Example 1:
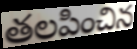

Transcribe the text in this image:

తలపించిన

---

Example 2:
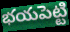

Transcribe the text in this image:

భయపెట్టి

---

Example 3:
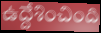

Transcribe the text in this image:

ఉద్దేశించింది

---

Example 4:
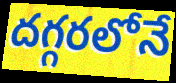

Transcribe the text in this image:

దగ్గరలోనే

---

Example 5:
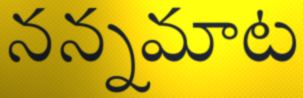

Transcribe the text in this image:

నన్నమాట